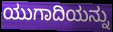
ಯುಗಾದಿಯನ್ನು